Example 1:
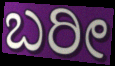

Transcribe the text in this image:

ಬರೀ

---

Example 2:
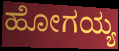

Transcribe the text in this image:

ಹೋಗಯ್ಯ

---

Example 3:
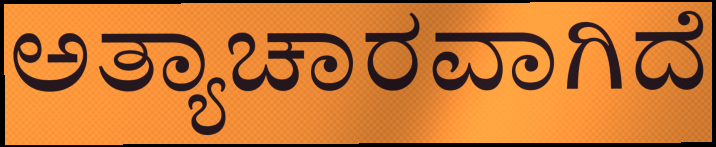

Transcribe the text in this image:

ಅತ್ಯಾಚಾರವಾಗಿದೆ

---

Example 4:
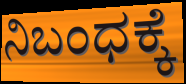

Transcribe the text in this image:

ನಿಬಂಧಕ್ಕೆ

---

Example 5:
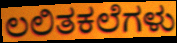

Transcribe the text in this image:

ಲಲಿತಕಲೆಗಳು